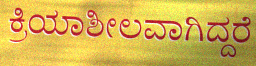
ಕ್ರಿಯಾಶೀಲವಾಗಿದ್ದರೆ